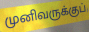
முனிவருக்குப்